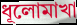
ধূলোমাখা